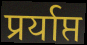
प्रर्याप्त